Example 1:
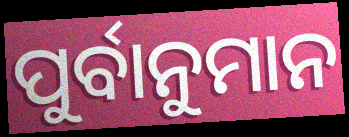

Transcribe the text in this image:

ପୁର୍ବାନୁମାନ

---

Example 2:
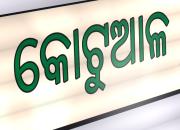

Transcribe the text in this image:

କୋଟୁଆଳ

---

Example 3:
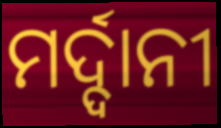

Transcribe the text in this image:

ମର୍ଦ୍ଦାନୀ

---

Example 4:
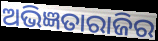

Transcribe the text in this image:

ଅଭିଜ୍ଞତାରାଜିର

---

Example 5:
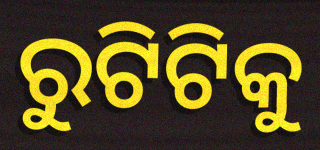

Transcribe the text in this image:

ରୁଟିଟିକୁ